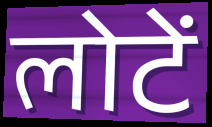
लोटें